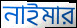
নাইমার